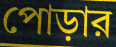
পোড়ার